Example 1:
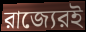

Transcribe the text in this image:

রাজ্যেরই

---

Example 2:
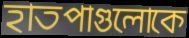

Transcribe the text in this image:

হাতপাগুলোকে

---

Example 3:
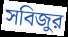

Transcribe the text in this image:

সবিজুর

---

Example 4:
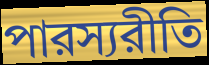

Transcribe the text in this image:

পারস্যরীতি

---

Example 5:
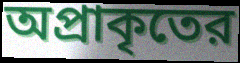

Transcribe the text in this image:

অপ্রাকৃতের